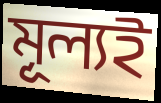
মূল্যই